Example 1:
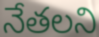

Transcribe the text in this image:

నేతలని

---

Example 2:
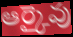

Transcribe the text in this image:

ఆర్కైవు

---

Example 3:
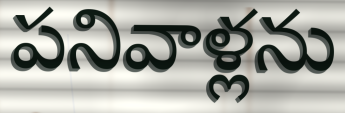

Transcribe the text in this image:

పనివాళ్లను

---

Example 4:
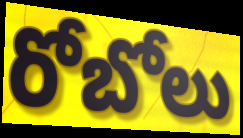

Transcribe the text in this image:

రోబోలు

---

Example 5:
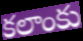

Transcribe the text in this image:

కలాంకు